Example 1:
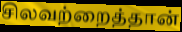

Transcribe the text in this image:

சிலவற்றைத்தான்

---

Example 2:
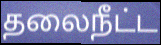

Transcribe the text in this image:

தலைநீட்ட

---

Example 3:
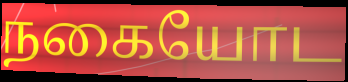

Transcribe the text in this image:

நகையோட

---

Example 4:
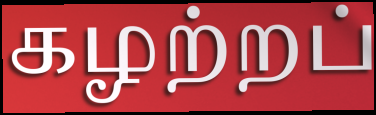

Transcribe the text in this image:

கழற்றப்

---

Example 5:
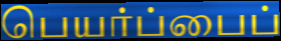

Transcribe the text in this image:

பெயர்ப்பைப்